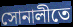
সোনালীতে